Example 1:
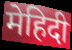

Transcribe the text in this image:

मेहिदी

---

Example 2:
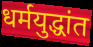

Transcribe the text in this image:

धर्मयुद्धांत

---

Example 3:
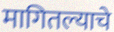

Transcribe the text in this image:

मागितल्याचे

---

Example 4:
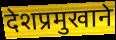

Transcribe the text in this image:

देशप्रमुखाने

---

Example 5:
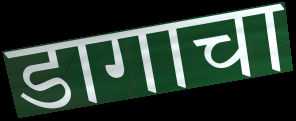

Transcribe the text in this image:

डागाचा